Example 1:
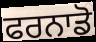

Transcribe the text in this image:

ਫਰਨਾਡੋ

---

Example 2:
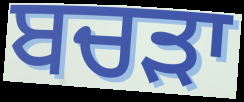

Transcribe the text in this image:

ਬਚੜਾ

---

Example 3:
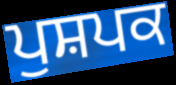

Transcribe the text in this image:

ਪੁਸ਼ਪਕ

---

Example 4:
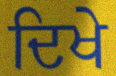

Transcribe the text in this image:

ਦਿਖੇ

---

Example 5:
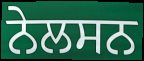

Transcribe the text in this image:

ਨੇਲਸਨ